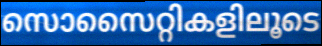
സൊസൈറ്റികളിലൂടെ